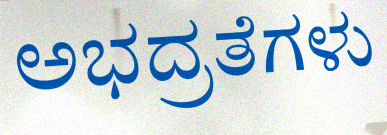
ಅಭದ್ರತೆಗಳು